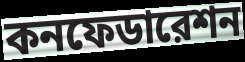
কনফেডারেশন